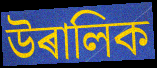
উৰালিক